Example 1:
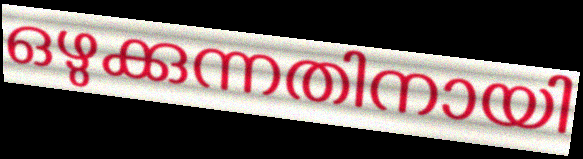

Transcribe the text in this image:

ഒഴുക്കുന്നതിനായി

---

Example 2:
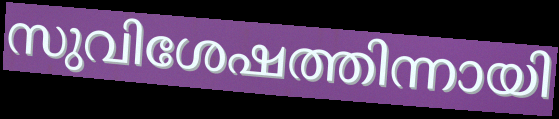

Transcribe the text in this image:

സുവിശേഷത്തിന്നായി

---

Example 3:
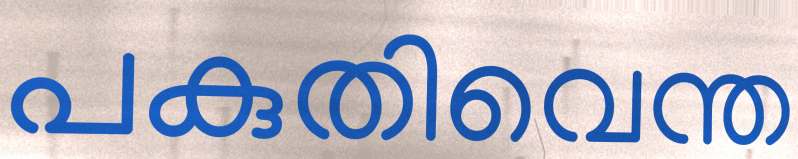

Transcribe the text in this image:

പകുതിവെന്ത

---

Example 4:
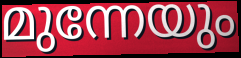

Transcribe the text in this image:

മുന്നേയും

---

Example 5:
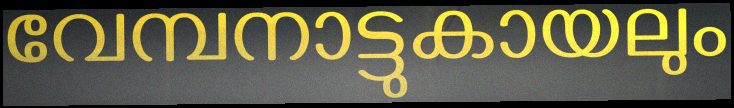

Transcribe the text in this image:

വേമ്പനാട്ടുകായലും